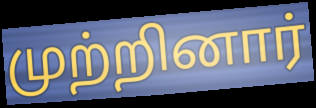
முற்றினார்